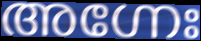
അഗ്നേഃ